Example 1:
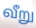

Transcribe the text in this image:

வீறு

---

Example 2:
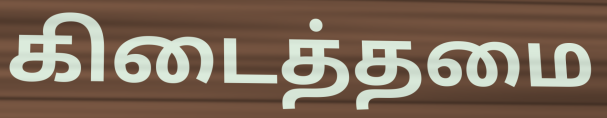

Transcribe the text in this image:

கிடைத்தமை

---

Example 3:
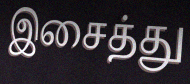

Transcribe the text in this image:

இசைத்து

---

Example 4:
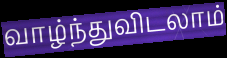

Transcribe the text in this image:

வாழ்ந்துவிடலாம்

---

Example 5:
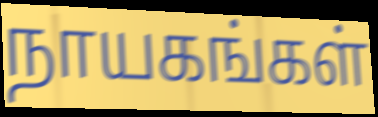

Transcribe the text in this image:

நாயகங்கள்